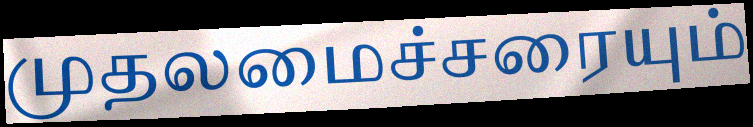
முதலமைச்சரையும்